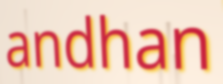
andhan